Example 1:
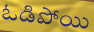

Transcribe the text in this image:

ఓడిపోయి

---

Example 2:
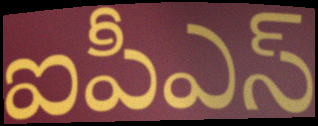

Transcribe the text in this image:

ఐపీఎస్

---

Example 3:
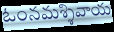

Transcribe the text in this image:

ఓంనమశ్శివాయ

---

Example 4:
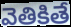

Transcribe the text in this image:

వెతికితే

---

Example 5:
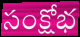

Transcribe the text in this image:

సంక్షోభ